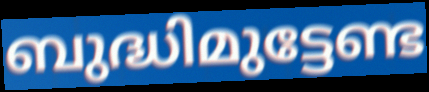
ബുദ്ധിമുട്ടേണ്ട